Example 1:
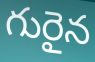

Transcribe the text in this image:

గురైన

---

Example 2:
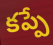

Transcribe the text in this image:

కప్పే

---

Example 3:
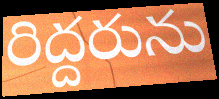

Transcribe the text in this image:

రిద్దరును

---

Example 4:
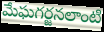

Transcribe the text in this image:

మేఘగర్జనలాంటి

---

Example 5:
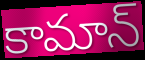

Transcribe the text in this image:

కామాన్